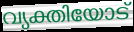
വ്യക്തിയോട്